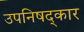
उपनिषद्कार